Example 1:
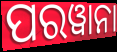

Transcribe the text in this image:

ପରୱାନା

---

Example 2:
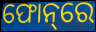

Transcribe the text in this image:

ଫୋନ୍‌ରେ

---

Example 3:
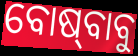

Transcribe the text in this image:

ବୋଷ୍‍ବାବୁ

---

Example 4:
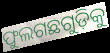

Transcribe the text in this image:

ଫୁଲଗଛଗୁଡ଼ିକୁ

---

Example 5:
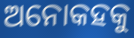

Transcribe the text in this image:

ଅନୋକହକୁ